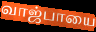
வாஜ்பாயை